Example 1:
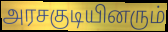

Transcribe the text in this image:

அரசகுடியினரும்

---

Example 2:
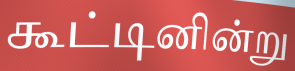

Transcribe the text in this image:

கூட்டினின்று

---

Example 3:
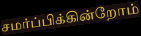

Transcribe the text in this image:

சமர்ப்பிக்கின்றோம்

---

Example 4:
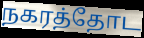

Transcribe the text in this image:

நகரத்தோட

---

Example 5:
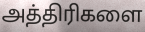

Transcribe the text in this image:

அத்திரிகளை